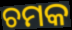
ଚମକ